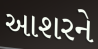
આશરને